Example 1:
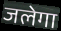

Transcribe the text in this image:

जलेगा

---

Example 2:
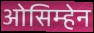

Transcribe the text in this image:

ओसिम्हेन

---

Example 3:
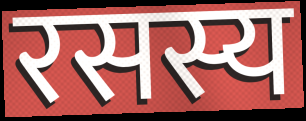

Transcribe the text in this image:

रसस्य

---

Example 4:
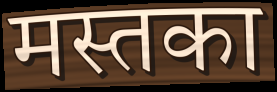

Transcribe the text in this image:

मस्तका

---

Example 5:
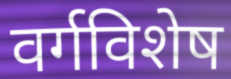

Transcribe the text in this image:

वर्गविशेष